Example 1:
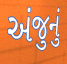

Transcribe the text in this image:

અંજુનું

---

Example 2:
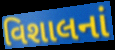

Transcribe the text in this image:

વિશાલનાં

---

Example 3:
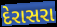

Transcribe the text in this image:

દેરાસરા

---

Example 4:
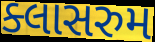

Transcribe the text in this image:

ક્લાસરુમ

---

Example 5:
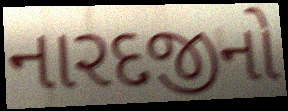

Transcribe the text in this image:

નારદજીનો